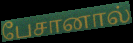
பேசானால்